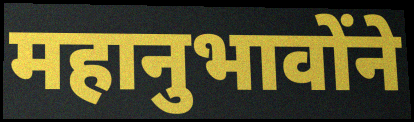
महानुभावोंने